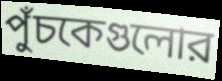
পুঁচকেগুলোর